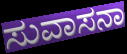
ಸುವಾಸನಾ